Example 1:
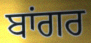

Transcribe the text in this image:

ਬਾਂਗਰ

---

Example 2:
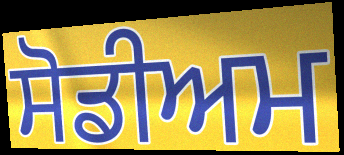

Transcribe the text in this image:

ਸੋਡੀਅਮ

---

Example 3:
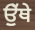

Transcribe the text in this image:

ਉੁੱਥੇ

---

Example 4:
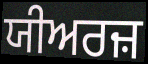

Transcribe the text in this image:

ਯੀਅਰਜ਼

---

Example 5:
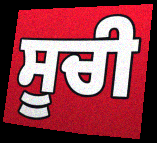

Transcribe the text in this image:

ਸੂਚੀ